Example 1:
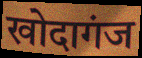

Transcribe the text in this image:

खोदागंज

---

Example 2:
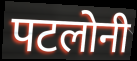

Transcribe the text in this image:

पटलोनी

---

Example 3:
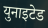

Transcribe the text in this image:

युनाइटेड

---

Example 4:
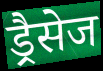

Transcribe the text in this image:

ड्रैसेज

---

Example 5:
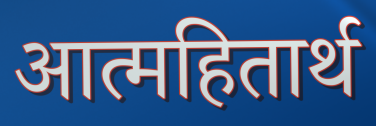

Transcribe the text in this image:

आत्महितार्थ